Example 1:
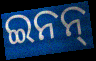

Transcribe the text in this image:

ଇନନ୍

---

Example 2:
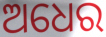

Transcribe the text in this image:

ଅଧେର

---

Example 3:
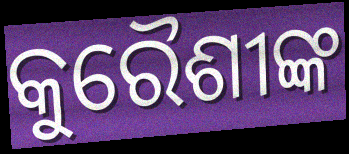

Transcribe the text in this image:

କୁରୈଶୀଙ୍କ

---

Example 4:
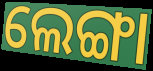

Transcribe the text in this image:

ଲେଙ୍ଗା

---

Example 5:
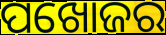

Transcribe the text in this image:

ପଖୋଜର